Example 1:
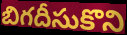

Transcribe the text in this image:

బిగదీసుకొని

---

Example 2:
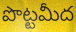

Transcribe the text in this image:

పొట్టమీద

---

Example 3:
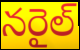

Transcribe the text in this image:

నరైల్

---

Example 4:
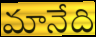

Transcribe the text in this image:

మానేది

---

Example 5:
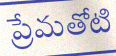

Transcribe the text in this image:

ప్రేమతోటి